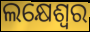
ଲକ୍ଷେଶ୍ୱର